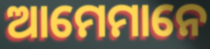
ଆମେମାନେ